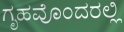
ಗೃಹವೊಂದರಲ್ಲಿ